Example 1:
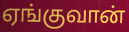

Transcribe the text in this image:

ஏங்குவான்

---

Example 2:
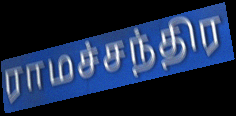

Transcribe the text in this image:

ராமச்சந்திர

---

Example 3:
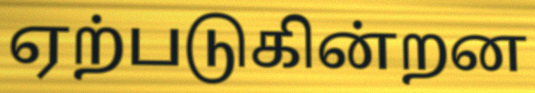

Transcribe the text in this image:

ஏற்படுகின்றன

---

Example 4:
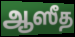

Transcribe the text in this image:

ஆஸீத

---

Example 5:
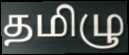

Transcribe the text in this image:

தமிழு